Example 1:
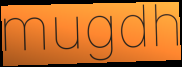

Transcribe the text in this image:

mugdh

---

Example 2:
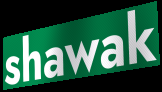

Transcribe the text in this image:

shawak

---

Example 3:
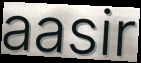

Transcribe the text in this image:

aasir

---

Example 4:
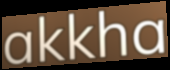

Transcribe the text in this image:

akkha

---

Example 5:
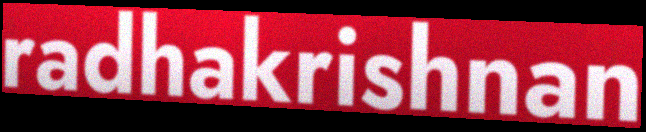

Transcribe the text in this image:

radhakrishnan